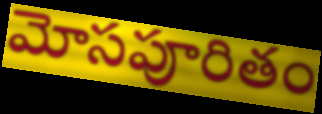
మోసపూరితం